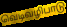
வெடிவழிபாடு